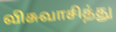
விசுவாசித்து